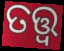
ତତ୍ତ୍ବ